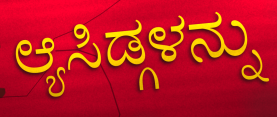
ಆ್ಯಸಿಡ್ಗಳನ್ನು